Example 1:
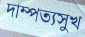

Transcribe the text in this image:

দাম্পত্যসুখ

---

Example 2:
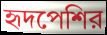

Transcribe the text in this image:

হৃদপেশির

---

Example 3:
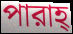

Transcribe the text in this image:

পারাহ্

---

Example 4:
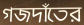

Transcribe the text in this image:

গজদাঁতের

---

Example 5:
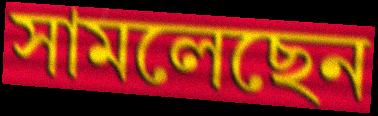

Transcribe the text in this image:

সামলেছেন